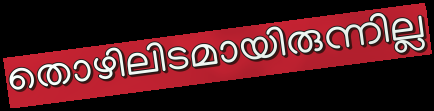
തൊഴിലിടമായിരുന്നില്ല